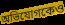
অভিযোগকেও